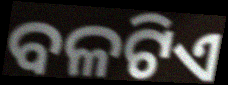
ବଳଟିଏ